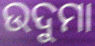
ଉଦୁମା